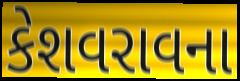
કેશવરાવના